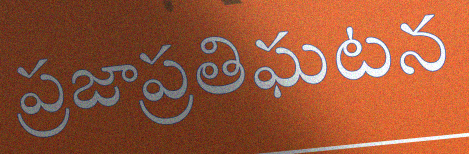
ప్రజాప్రతిఘటన